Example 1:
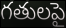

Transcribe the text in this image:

గతులపై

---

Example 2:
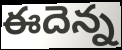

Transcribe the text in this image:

ఈదెన్న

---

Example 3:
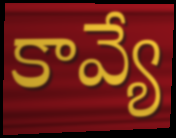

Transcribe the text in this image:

కావ్యే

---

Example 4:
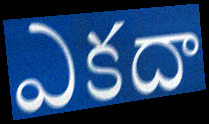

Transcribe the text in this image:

ఎకదా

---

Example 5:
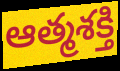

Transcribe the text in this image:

ఆత్మశక్తి